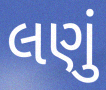
લણું